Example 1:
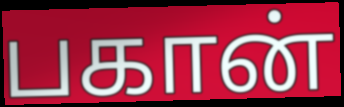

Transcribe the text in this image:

பகான்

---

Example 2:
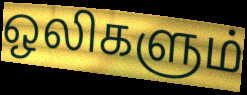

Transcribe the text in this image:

ஒலிகளும்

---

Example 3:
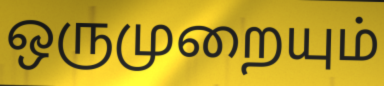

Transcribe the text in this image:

ஒருமுறையும்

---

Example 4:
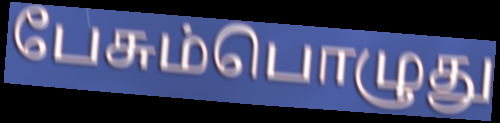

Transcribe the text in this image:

பேசும்பொழுது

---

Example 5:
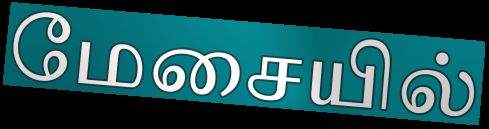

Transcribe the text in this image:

மேசையில்